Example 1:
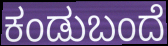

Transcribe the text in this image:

ಕಂಡುಬಂದೆ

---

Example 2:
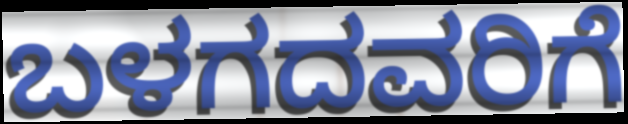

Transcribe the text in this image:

ಬಳಗದವರಿಗೆ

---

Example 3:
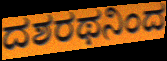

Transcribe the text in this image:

ದಶರಥನಿಂದ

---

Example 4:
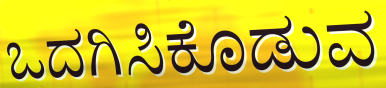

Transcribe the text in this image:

ಒದಗಿಸಿಕೊಡುವ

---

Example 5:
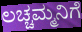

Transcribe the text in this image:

ಲಚ್ಚಮ್ಮನಿಗೆ